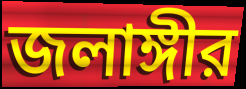
জলাঙ্গীর